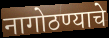
नागोठण्याचे